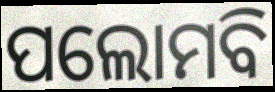
ପଲୋମବି